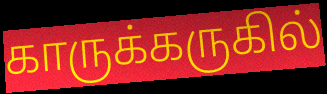
காருக்கருகில்